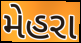
મેહરા